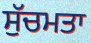
ਸੁੱਚਮਤਾ